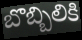
బొబ్బిలికి